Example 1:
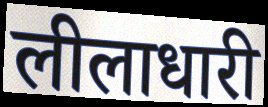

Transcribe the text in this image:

लीलाधारी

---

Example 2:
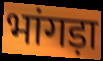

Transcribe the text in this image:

भांगड़ा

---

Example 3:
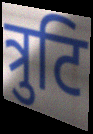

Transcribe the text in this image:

त्रुटि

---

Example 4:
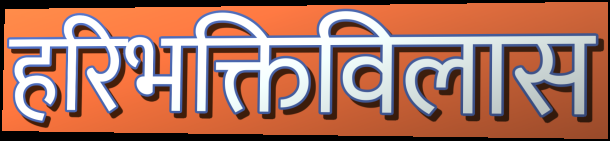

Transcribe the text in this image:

हरिभक्तिविलास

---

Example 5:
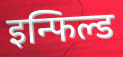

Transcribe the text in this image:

इन्फिल्ड